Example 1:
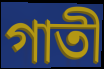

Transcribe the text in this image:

গাতী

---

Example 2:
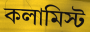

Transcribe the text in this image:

কলামিস্ট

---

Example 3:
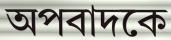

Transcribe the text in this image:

অপবাদকে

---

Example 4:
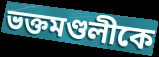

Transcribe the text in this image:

ভক্তমণ্ডলীকে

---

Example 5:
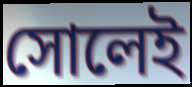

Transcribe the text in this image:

সোলেই